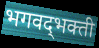
भगवद्‌भक्ती